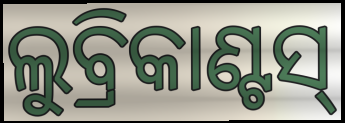
ଲୁବ୍ରିକାଣ୍ଟସ୍